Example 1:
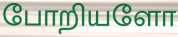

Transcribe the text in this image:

போறியளோ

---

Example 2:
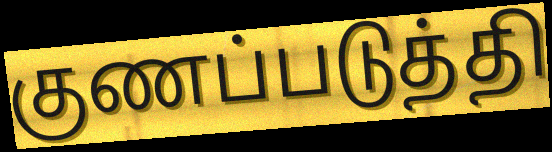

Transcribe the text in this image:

குணப்படுத்தி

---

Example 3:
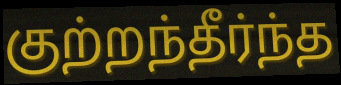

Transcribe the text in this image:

குற்றந்தீர்ந்த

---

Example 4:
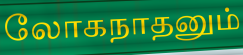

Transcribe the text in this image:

லோகநாதனும்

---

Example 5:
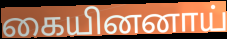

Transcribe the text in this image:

கையினனாய்